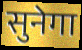
सुनेगा